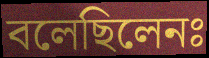
বলেছিলেনঃ